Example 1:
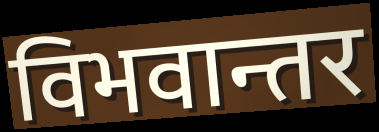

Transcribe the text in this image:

विभवान्तर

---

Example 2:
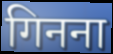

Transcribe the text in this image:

गिनना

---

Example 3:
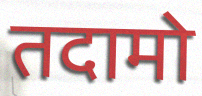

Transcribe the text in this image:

तदामो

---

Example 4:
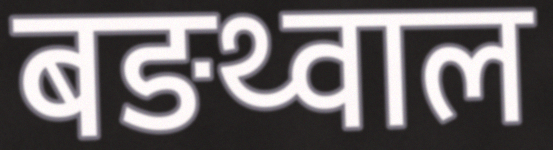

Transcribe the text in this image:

बङथ्वाल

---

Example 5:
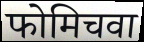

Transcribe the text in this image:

फोमिचवा